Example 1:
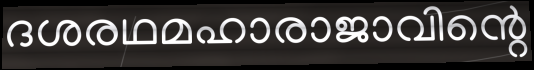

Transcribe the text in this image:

ദശരഥമഹാരാജാവിന്റെ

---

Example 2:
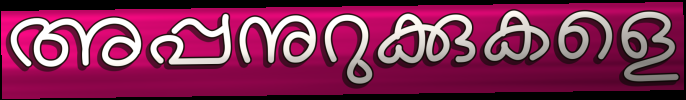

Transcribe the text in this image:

അപ്പനുറുക്കുകളെ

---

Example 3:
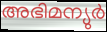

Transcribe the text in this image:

അഭിമന്യുർ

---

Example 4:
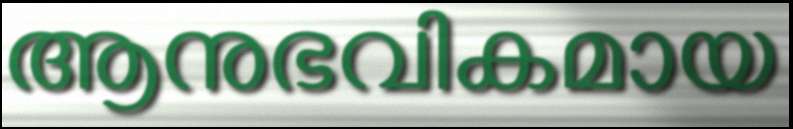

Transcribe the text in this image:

ആനുഭവികമായ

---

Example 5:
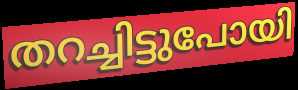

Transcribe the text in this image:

തറച്ചിട്ടുപോയി